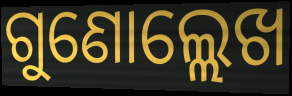
ଗୁଣୋଲ୍ଲେଖ